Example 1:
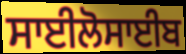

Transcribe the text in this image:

ਸਾਈਲੋਸਾਈਬ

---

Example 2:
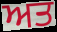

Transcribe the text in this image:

ਅਤ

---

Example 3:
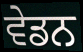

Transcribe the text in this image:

ਵੇਡਨ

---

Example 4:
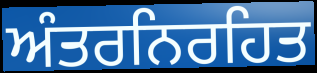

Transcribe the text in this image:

ਅੰਤਰਨਿਰਹਿਤ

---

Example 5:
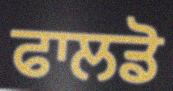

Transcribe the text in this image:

ਫਾਲਡੋ